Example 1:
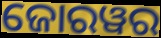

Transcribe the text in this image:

ଜୋରୱର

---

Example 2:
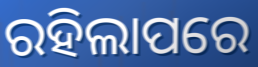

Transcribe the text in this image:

ରହିଲାପରେ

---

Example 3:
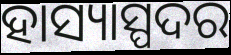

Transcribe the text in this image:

ହାସ୍ୟାସ୍ପଦର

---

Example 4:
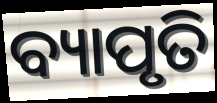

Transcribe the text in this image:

ବ୍ୟାପୃତି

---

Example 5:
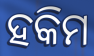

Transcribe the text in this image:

ହକିମ